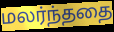
மலர்ந்ததை